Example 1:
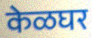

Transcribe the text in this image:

केळघर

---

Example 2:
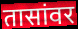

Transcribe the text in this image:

तासांवर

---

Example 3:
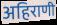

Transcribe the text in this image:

अहिराणी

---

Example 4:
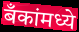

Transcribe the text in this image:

बँकांमध्ये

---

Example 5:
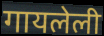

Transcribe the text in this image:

गायलेली